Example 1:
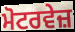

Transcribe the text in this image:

ਮੋਟਰਵੇਜ਼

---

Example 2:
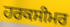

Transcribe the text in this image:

ਹਰਕਸੀਮਰ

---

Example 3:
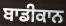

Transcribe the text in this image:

ਬਾਡੀਕਾਨ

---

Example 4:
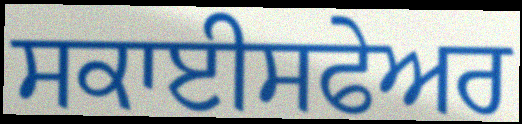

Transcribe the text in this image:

ਸਕਾਈਸਫੇਅਰ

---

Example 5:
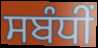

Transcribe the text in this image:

ਸਬੰਧੀਂ